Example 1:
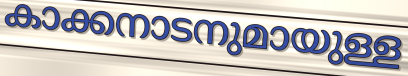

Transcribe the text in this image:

കാക്കനാടനുമായുള്ള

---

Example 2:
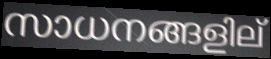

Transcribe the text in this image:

സാധനങ്ങളില്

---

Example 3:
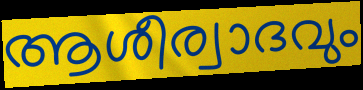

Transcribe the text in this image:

ആശീര്വാദവും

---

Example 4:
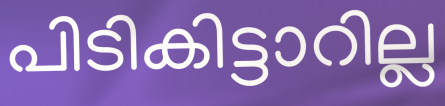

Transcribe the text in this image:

പിടികിട്ടാറില്ല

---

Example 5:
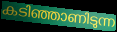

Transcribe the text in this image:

കടിഞ്ഞാണിടുന്ന